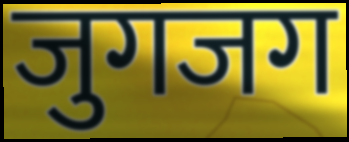
जुगजग